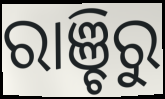
ରାଞ୍ଚିରୁ